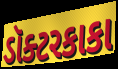
ડૉક્ટરકાકા